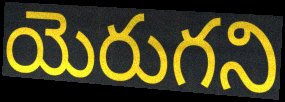
యెరుగని